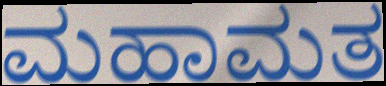
ಮಹಾಮತ